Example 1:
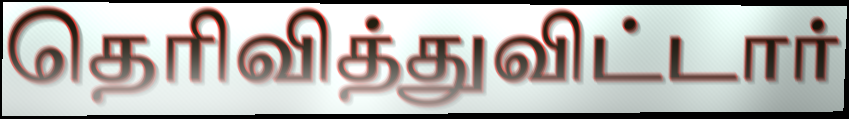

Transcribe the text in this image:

தெரிவித்துவிட்டார்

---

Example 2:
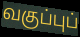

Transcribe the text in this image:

வகுப்புப்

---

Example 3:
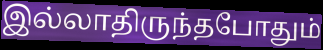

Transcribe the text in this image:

இல்லாதிருந்தபோதும்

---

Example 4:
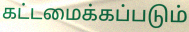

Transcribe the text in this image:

கட்டமைக்கப்படும்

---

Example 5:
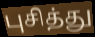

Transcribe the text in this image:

புசித்து